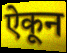
ऐकून